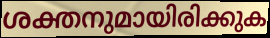
ശക്തനുമായിരിക്കുക